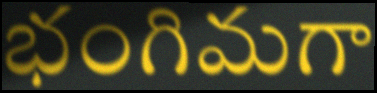
భంగిమగా